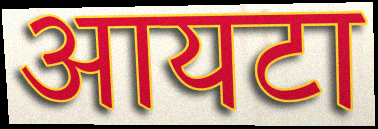
आयटा